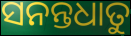
ସନନ୍ତଧାତୁ